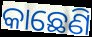
କାଛେଣି